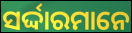
ସର୍ଦ୍ଦାରମାନେ